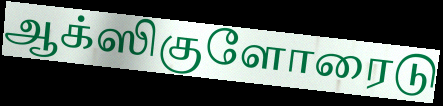
ஆக்ஸிகுளோரைடு